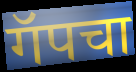
गॅपचा